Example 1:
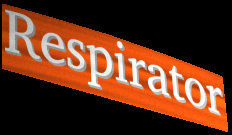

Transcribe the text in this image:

Respirator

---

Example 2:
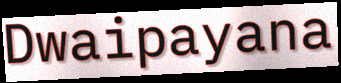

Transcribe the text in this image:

Dwaipayana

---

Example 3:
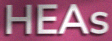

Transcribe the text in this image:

HEAs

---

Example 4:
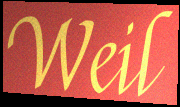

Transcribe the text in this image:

Weil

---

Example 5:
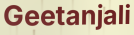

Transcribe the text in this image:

Geetanjali